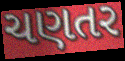
ચણતર